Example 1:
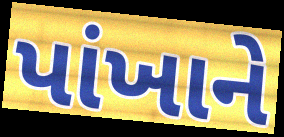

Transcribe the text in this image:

પાંખાને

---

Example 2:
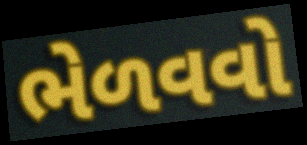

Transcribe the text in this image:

ભેળવવો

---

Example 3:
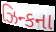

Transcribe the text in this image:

ઝિન્કના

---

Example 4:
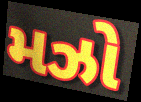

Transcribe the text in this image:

મઝો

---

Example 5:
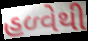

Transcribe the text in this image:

હળ્વેથી